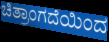
ಚಿತ್ರಾಂಗದೆಯಿಂದ